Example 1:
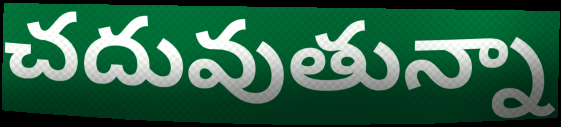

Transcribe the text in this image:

చదువుతున్నా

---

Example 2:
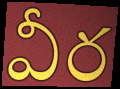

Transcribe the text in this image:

వీర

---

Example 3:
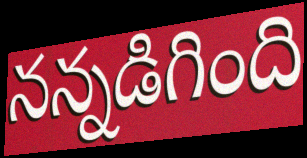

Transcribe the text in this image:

నన్నడిగింది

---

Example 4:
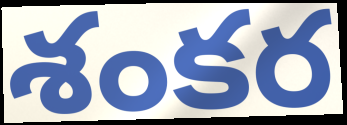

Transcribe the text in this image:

శంకర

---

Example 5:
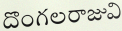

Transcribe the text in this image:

దొంగలరాజువి